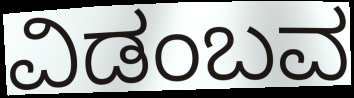
ವಿಡಂಬವ